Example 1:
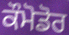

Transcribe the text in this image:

ਕੌਮੋਡੋਰ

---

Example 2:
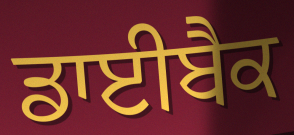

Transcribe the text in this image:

ਡਾਈਬੈਕ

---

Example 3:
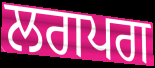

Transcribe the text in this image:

ਲਗਪਗ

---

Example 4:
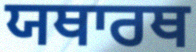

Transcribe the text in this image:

ਯਥਾਰਥ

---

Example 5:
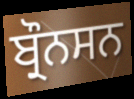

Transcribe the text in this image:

ਬ੍ਰੌਨਸਨ